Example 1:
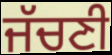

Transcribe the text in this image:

ਜੱਚਣੀ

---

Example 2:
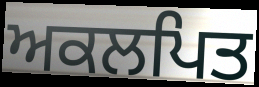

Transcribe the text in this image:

ਅਕਲਪਿਤ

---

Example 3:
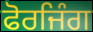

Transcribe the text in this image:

ਫੋਰਜਿੰਗ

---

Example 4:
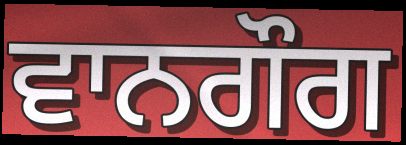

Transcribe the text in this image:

ਵਾਨਗੌਗ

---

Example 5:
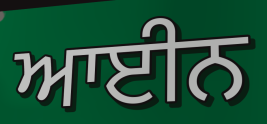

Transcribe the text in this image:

ਆਈਨ